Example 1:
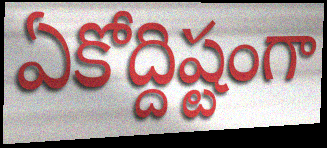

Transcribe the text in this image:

ఏకోద్దిష్టంగా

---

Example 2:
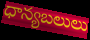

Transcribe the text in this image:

ధాన్యబలులు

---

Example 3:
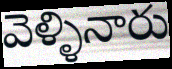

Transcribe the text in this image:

వెళ్ళినారు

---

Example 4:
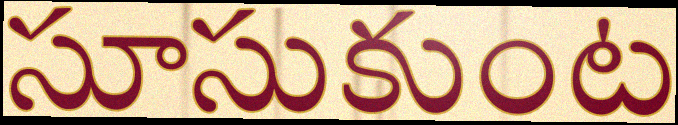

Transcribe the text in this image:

సూసుకుంట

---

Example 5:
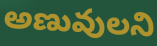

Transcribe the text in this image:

అణువులని